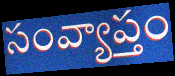
సంవ్యాప్తం